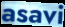
asavi